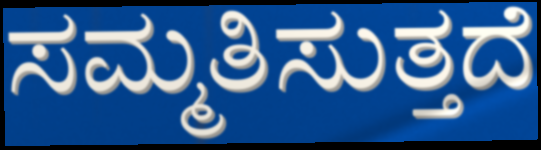
ಸಮ್ಮತಿಸುತ್ತದೆ